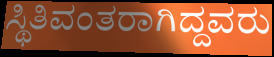
ಸ್ಥಿತಿವಂತರಾಗಿದ್ದವರು